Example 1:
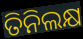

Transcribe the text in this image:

ତିନିଲକ୍ଷ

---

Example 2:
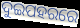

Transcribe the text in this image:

ଦୁଇପହରରେ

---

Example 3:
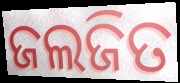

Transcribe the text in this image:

ଜଲଜିତ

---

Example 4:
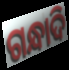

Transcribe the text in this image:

ଗନ୍ଧାଦି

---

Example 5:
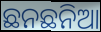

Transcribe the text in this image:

ଛନଛନିଆ